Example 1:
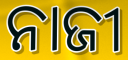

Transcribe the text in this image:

ନାଜୀ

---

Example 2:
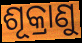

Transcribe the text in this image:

ଶୂକ୍ରାଣୁ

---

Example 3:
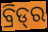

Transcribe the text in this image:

ବ୍ରିଡ୍‌ର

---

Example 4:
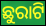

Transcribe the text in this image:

ଛୁରାଟି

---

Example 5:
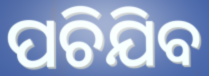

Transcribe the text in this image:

ପଚିଯିବ